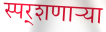
स्पर्शणाऱ्या